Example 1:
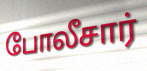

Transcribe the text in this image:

போலீசார்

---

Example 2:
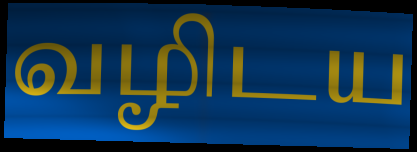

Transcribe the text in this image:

வழிடய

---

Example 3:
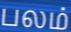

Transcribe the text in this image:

பலம்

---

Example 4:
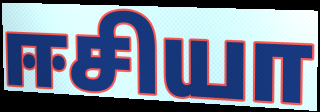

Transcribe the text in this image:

ஈசியா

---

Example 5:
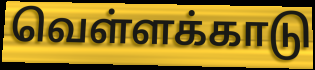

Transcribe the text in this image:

வெள்ளக்காடு